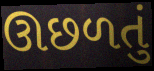
ઊછળતું